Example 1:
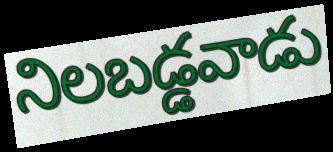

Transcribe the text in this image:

నిలబడ్డవాడు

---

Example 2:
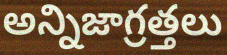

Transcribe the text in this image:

అన్నిజాగ్రత్తలు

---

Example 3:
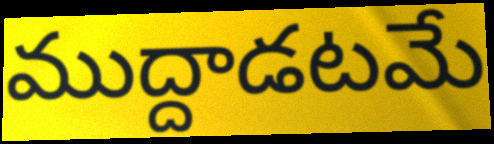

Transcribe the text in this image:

ముద్దాడటమే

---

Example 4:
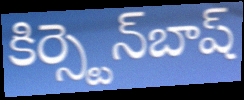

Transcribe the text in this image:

కిర్స్టెన్‌బాష్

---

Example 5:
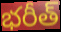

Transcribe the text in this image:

భరీత్